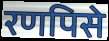
रणपिसे